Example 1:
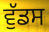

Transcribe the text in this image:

ਵੁੱਡਸ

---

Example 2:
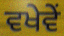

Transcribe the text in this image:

ਵਖੇਵੇਂ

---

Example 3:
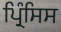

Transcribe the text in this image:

ਪ੍ਰਿੰਸਿਸ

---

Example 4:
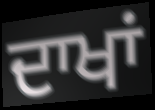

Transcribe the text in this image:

ਦਾਖਾਂ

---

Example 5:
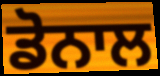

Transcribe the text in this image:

ਡੋਨਾਲ